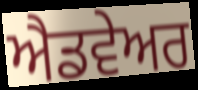
ਐਡਵੇਅਰ